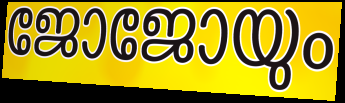
ജോജോയും